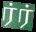
ர்ர்